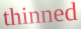
thinned